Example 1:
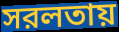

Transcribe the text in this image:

সরলতায়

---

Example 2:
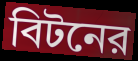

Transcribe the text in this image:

বিটনের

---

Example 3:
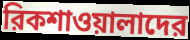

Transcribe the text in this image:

রিকশাওয়ালাদের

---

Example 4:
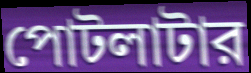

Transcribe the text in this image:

পোটলাটার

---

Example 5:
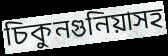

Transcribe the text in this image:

চিকুনগুনিয়াসহ